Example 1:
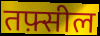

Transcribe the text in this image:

तफ़्सील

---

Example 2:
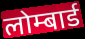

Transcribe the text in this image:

लोम्बार्ड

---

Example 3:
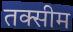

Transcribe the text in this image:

तक्सीम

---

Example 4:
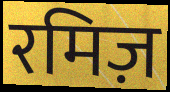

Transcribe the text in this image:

रमिज़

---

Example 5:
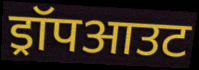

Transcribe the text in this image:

ड्रॉपआउट